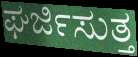
ಘರ್ಜಿಸುತ್ತ